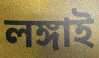
লঙ্গাই